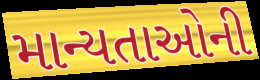
માન્યતાઓની